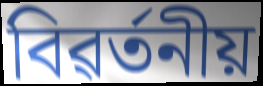
বিৱৰ্তনীয়